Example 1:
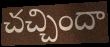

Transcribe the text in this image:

చచ్చిందా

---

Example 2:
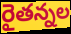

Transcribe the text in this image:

రైతన్నల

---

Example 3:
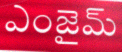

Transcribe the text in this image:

ఎంజైమ్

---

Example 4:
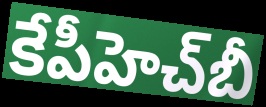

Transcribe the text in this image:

కేపీహెచ్‌బీ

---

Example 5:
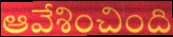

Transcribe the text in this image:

ఆవేశించింది